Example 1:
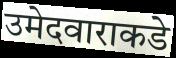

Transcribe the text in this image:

उमेदवाराकडे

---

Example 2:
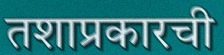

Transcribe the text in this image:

तशाप्रकारची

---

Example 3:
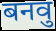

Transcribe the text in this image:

बनवु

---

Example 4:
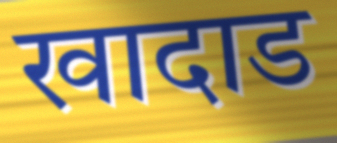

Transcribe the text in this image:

खादाड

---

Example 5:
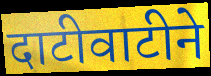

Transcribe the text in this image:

दाटीवाटीने